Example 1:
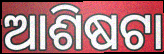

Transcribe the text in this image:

ଆଶିଷଟା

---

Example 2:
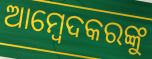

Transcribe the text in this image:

ଆମ୍ବେଦକରଙ୍କୁ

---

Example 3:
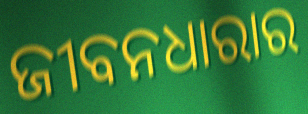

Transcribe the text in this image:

ଜୀବନଧାରାର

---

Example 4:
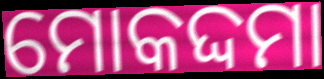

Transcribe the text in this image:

ମୋକଦ୍ଦମା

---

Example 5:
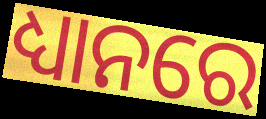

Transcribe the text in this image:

ଧ୍ୟାନରେ